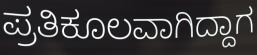
ಪ್ರತಿಕೂಲವಾಗಿದ್ದಾಗ